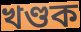
খণ্ডক